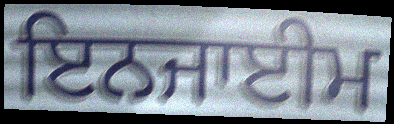
ਇਨਜਾਈਮ